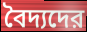
বৈদ্যদের